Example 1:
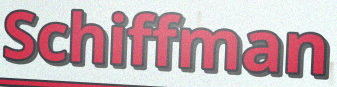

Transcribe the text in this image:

Schiffman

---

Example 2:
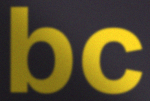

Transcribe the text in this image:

bc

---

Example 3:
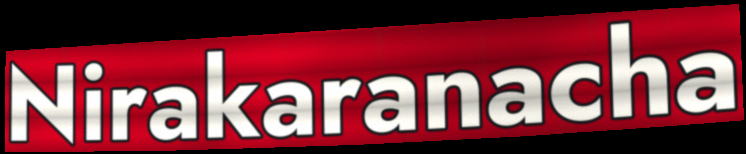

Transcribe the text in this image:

Nirakaranacha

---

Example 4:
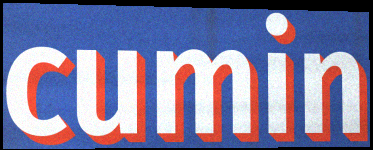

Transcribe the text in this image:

cumin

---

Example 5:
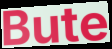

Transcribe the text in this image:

Bute